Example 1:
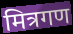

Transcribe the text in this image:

मित्रगण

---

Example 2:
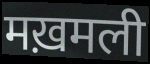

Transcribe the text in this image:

मख़मली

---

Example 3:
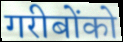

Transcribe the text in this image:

गरीबोंको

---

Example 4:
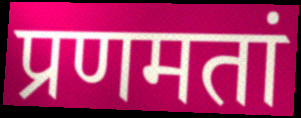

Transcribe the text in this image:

प्रणमतां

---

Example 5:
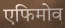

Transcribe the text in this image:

एफिमोव